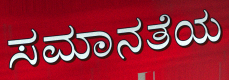
ಸಮಾನತೆಯ